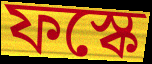
ফস্কে